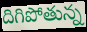
దిగిపోతున్న